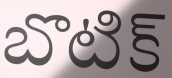
బొటిక్